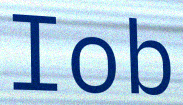
Iob